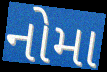
નોમા